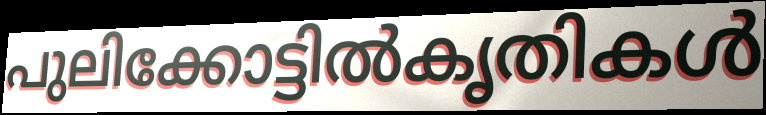
പുലിക്കോട്ടിൽകൃതികൾ